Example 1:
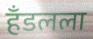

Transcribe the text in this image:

हँडलला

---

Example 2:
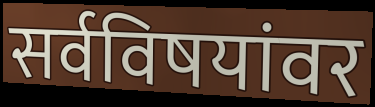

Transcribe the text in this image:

सर्वविषयांवर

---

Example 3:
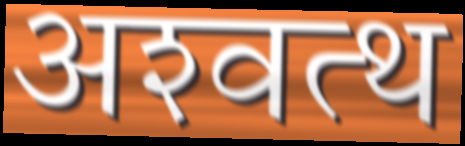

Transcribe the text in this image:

अश्वत्थ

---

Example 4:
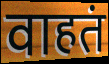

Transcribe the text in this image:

वाहतं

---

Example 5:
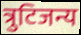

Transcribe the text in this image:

त्रुटिजन्य